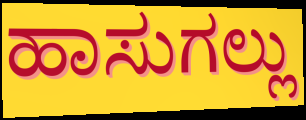
ಹಾಸುಗಲ್ಲು